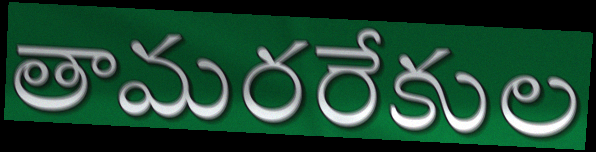
తామరరేకుల